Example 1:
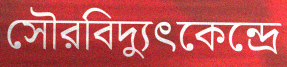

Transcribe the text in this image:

সৌরবিদ্যুৎকেন্দ্রে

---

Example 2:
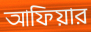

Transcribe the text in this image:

আফিয়ার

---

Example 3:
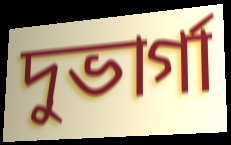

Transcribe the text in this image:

দুভার্গা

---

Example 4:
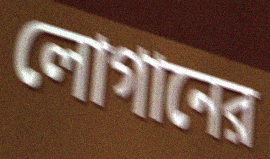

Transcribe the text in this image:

লোগানের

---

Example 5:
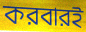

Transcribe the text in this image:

করবারই